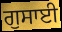
ਗੁਸਾਈ